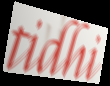
tidhi